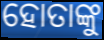
ହୋତାଙ୍କୁ